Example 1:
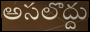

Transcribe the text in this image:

అసలొద్దు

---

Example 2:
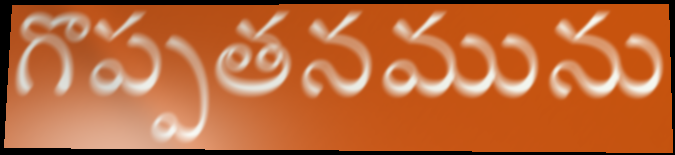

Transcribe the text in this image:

గొప్పతనమును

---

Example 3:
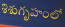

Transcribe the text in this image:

శిశుగృహంలో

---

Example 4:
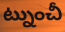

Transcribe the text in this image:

ట్నుంచీ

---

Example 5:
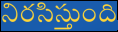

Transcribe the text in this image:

నిరసిస్తుంది